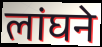
लांघने